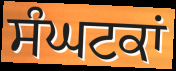
ਸੰਘਟਕਾਂ